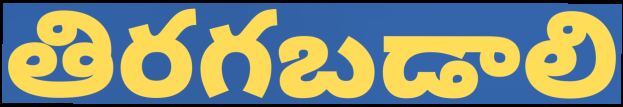
తిరగబడాలి